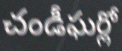
చండీఘర్లో